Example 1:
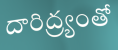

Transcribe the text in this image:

దారిద్ర్యంతో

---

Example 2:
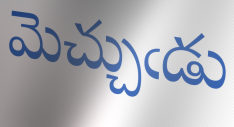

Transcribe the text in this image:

మెచ్చుఁడు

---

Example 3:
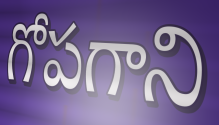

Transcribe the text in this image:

గోపగాని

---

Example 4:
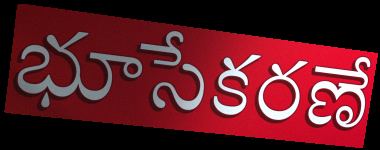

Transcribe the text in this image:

భూసేకరణే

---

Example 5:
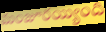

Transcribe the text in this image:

మంజూరయ్యింది